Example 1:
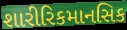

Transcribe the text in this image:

શારીરિકમાનસિક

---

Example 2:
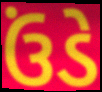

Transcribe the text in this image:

ઉંડે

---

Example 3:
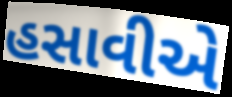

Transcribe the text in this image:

હસાવીએ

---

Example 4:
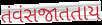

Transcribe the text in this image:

તંવંસજાતતાય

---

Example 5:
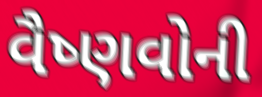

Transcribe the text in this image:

વૈષ્ણવોની